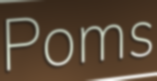
Poms